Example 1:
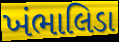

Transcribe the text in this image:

ખંભાલિડા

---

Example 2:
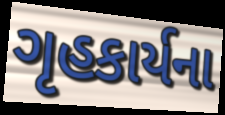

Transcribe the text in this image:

ગૃહકાર્યના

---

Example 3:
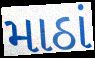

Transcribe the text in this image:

માઠાં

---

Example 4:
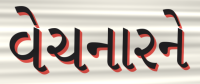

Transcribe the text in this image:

વેચનારને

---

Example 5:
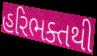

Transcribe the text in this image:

હરિભક્તથી